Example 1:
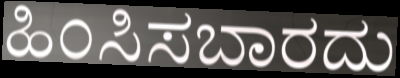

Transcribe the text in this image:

ಹಿಂಸಿಸಬಾರದು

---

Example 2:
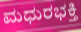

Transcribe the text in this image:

ಮಧುರಭಕ್ತಿ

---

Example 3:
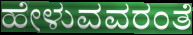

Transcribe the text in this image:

ಹೇಳುವವರಂತೆ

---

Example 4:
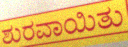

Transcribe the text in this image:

ಶುರವಾಯಿತು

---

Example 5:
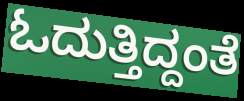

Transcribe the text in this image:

ಓದುತ್ತಿದ್ದಂತೆ